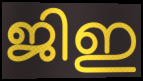
ജിഇ